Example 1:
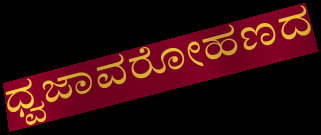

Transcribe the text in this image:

ಧ್ವಜಾವರೋಹಣದ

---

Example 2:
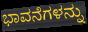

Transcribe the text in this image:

ಭಾವನೆಗಳನ್ನು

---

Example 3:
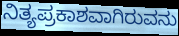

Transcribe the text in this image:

ನಿತ್ಯಪ್ರಕಾಶವಾಗಿರುವನು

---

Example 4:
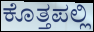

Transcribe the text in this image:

ಕೊತ್ತಪಲ್ಲಿ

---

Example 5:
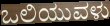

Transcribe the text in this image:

ಒಲಿಯುವಳು